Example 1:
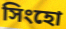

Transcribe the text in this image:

সিংহো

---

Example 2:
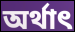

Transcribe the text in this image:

অর্থাৎ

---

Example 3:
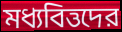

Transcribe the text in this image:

মধ্যবিত্তদের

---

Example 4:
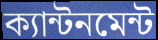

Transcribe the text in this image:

ক্যান্টনমেন্ট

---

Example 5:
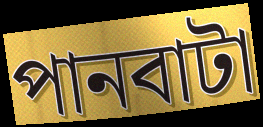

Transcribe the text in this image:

পানবাটা